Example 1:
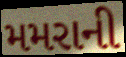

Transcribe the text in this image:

મમરાની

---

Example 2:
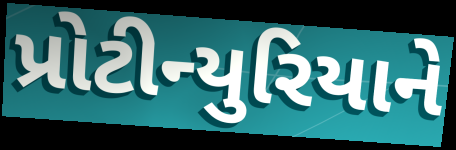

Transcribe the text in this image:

પ્રોટીન્યુરિયાને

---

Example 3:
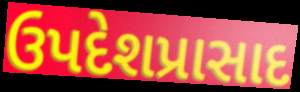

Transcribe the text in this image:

ઉપદેશપ્રાસાદ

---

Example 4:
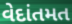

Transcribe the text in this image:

વેદાંતમત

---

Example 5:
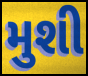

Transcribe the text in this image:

મુશી